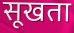
सूखता